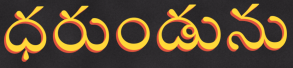
ధరుండును